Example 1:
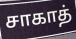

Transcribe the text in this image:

சாகாத்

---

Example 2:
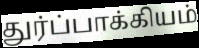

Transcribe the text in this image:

துர்ப்பாக்கியம்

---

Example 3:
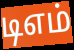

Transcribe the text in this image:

டிஎம்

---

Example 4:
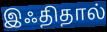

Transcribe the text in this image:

இஃதிதால்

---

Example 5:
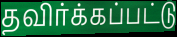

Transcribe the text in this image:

தவிர்க்கப்பட்டு